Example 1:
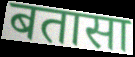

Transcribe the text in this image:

बतासा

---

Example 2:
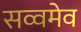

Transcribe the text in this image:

सव्वमेव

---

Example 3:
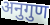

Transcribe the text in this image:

अनुगुण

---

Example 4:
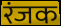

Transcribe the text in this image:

रंजक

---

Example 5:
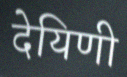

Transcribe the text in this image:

देयिणी